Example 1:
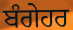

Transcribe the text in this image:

ਬੰਗੇਹਰ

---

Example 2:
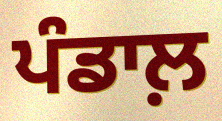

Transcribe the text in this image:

ਪੰਡਾਲ਼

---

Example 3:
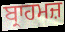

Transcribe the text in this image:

ਬ੍ਰਾਹਮਜ਼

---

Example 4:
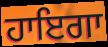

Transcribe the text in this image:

ਹਾਇਗਾ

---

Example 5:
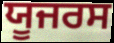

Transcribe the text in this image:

ਯੂਜਰਸ